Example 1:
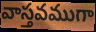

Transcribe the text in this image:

వాస్తవముగా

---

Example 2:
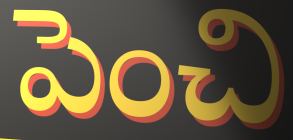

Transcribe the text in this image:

పెంచి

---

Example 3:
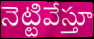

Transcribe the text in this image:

నెట్టివేస్తూ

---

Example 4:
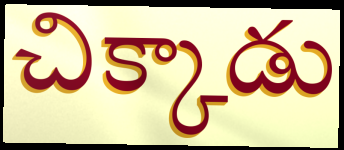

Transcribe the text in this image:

చిక్కాడు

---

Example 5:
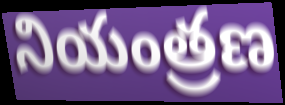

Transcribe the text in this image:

నియంత్రణ